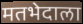
मतभेदाला